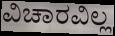
ವಿಚಾರವಿಲ್ಲ